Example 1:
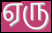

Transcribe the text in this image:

ஏரு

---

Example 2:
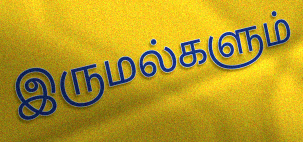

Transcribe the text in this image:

இருமல்களும்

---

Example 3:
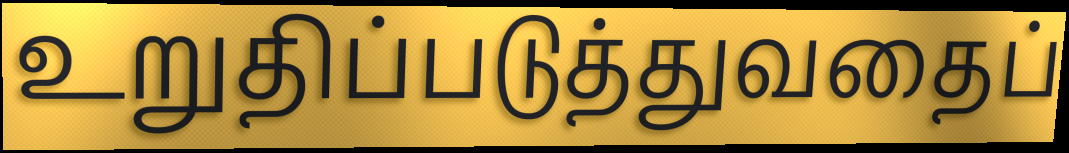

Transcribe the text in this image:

உறுதிப்படுத்துவதைப்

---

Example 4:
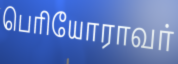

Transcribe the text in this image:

பெரியோராவர்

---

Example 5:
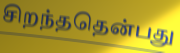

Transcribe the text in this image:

சிறந்ததென்பது